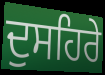
ਦੁਸਹਿਰੇ